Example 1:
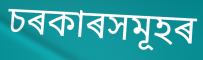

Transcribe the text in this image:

চৰকাৰসমূহৰ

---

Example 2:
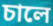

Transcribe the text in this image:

চালে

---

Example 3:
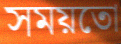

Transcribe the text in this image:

সময়তো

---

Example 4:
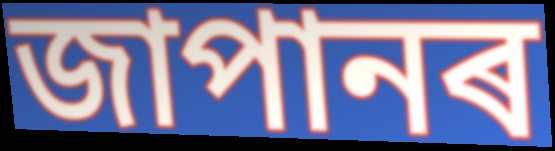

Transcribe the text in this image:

জাপানৰ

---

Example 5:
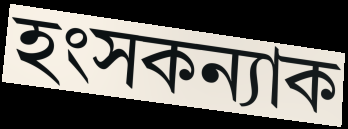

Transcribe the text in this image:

হংসকন্যাক